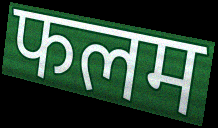
फलम